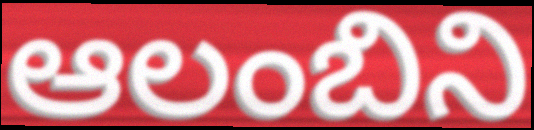
ఆలంబిని